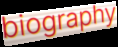
biography